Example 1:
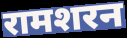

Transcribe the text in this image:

रामशरन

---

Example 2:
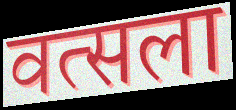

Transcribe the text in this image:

वत्सला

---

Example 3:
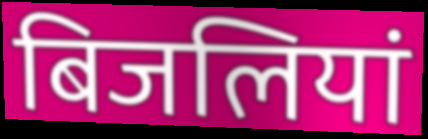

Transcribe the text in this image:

बिजलियां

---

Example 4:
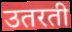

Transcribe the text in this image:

उतरती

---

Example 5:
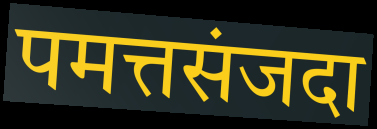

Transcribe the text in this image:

पमत्तसंजदा